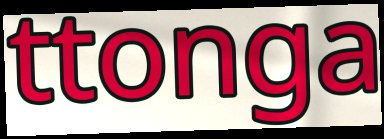
ttonga